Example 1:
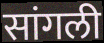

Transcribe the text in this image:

सांगली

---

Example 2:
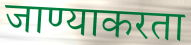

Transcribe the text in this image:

जाण्याकरता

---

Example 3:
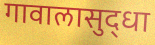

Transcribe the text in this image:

गावालासुद्धा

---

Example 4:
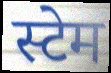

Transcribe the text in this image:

स्टेम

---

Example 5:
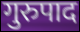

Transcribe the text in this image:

गुरुपाद